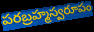
పరబ్రహ్మస్వరూపం